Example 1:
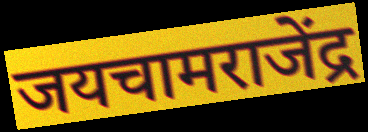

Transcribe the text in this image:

जयचामराजेंद्र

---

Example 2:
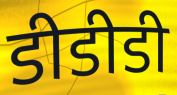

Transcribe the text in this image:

डीडीडी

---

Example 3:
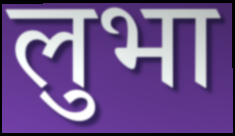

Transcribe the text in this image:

लुभा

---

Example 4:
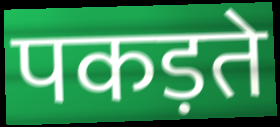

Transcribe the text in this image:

पकड़ते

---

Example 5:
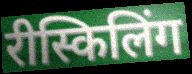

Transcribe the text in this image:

रीस्किलिंग